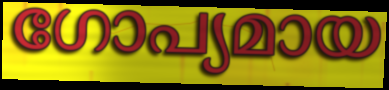
ഗോപ്യമായ